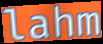
lahm